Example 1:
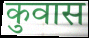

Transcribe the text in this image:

कुवास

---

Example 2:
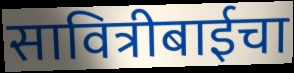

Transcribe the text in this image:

सावित्रीबाईचा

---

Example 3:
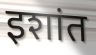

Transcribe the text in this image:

इशांत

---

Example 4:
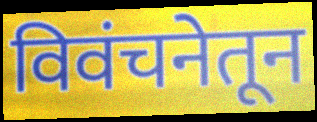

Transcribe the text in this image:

विवंचनेतून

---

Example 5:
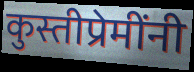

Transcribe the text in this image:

कुस्तीप्रेमींनी